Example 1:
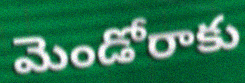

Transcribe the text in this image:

మెండోరాకు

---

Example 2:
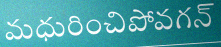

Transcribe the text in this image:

మధురించిపోవగన్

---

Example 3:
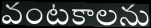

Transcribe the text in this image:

వంటకాలను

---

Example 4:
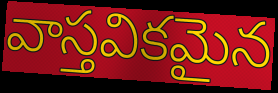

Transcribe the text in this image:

వాస్తవికమైన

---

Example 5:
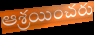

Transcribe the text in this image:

ఆశ్రయించరు